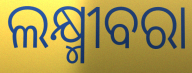
ଲକ୍ଷ୍ମୀବରା